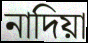
নাদিয়া